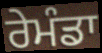
ਰੇਮੰਡਾ